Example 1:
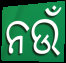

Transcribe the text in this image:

ନଉଁ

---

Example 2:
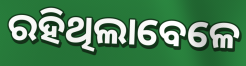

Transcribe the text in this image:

ରହିଥିଲାବେଳେ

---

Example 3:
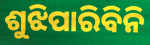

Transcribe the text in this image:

ଶୁଝିପାରିବିନି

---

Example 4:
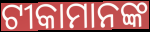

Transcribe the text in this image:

ଟୀକାମାନଙ୍କ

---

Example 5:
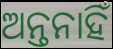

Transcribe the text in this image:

ଅନ୍ତନାହିଁ